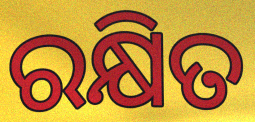
ରକ୍ଷିତ